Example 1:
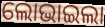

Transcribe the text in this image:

ଲୋଭାଇଲା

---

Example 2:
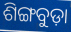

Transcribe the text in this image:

ଶିଙ୍ଗବୁଡ଼ା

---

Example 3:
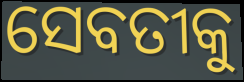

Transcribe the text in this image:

ସେବତୀକୁ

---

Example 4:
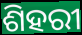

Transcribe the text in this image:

ଶିହରୀ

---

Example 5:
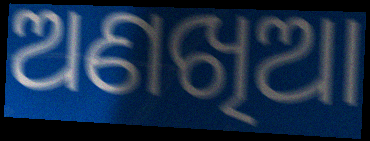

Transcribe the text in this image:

ଅଣଖିଆ